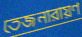
তেজনারায়ণ